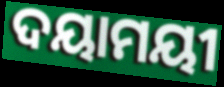
ଦୟାମୟୀ